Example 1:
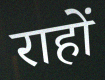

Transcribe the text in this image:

राहों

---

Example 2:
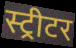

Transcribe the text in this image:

स्ट्रीटर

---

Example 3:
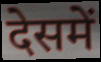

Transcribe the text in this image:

देसमें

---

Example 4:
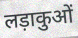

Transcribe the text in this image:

लड़ाकुओं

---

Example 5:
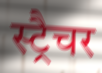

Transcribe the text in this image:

स्ट्रैचर